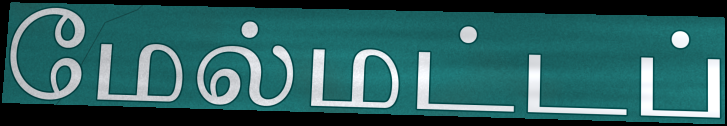
மேல்மட்டப்